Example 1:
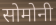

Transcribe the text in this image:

सोमोनी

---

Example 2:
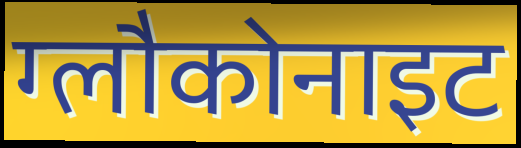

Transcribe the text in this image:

ग्लौकोनाइट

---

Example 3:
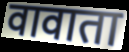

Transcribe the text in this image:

वावाता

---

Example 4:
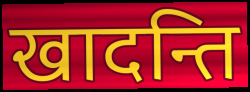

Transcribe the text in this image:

खादन्ति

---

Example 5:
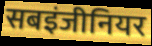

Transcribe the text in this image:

सबइंजीनियर